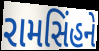
રામસિંહને